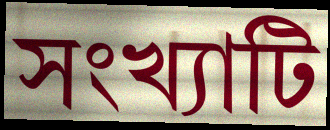
সংখ্যাটি